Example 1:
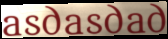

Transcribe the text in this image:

asdasdad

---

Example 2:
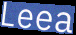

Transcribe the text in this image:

Leea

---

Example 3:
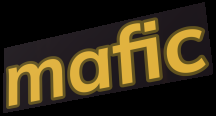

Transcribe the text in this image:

mafic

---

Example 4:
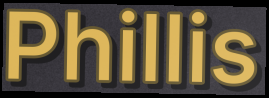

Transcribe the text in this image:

Phillis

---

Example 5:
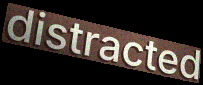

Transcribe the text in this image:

distracted